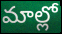
మాల్లో